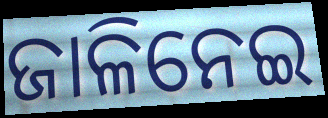
ଜାଳିନେଇ